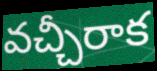
వచ్చీరాక